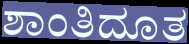
ಶಾಂತಿದೂತ